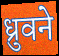
ध्रुवने